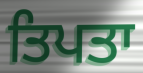
ਤਿਪਤਾ